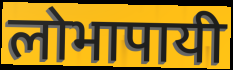
लोभापायी